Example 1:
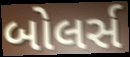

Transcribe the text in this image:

બોલર્સ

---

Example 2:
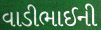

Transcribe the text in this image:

વાડીભાઈની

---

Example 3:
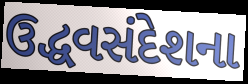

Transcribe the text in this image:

ઉદ્ધવસંદેશના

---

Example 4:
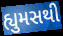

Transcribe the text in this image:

હ્યુમસથી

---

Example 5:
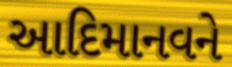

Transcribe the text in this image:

આદિમાનવને